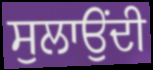
ਸੁਲਾਉਂਦੀ